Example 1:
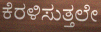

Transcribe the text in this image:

ಕೆರಳಿಸುತ್ತಲೇ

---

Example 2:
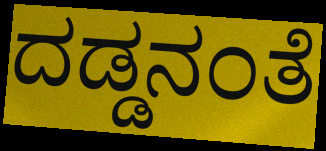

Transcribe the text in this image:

ದಡ್ಡನಂತೆ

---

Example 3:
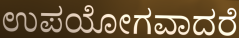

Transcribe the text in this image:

ಉಪಯೋಗವಾದರೆ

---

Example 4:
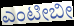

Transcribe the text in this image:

ಎಂಟೀಬೀ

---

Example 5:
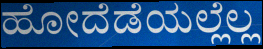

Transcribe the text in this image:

ಹೋದೆಡೆಯಲ್ಲೆಲ್ಲ